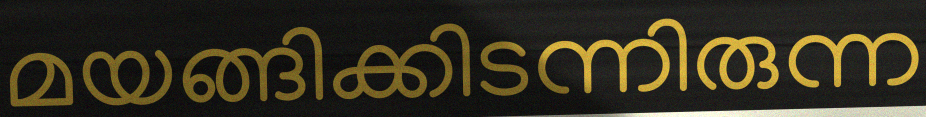
മയങ്ങിക്കിടന്നിരുന്ന